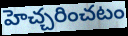
హెచ్చరించటం